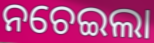
ନଚେଇଲା